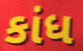
કાંધ